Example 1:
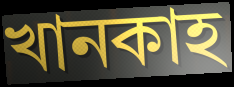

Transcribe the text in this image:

খানকাহ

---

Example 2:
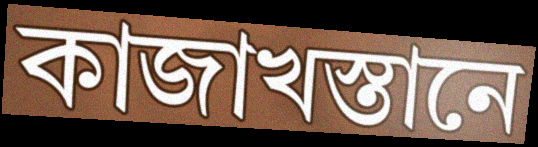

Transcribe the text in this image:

কাজাখস্তানে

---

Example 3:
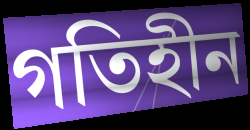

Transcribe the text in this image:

গতিহীন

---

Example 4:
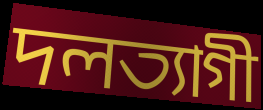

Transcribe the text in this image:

দলত্যাগী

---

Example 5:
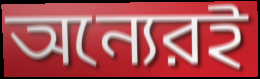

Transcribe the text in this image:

অন্যেরই